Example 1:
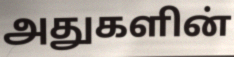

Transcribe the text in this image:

அதுகளின்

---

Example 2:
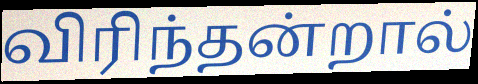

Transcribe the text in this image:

விரிந்தன்றால்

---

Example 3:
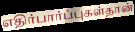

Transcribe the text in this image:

எதிர்பார்ப்புகள்தான்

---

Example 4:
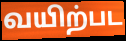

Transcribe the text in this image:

வயிற்பட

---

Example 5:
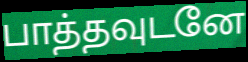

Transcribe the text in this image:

பாத்தவுடனே